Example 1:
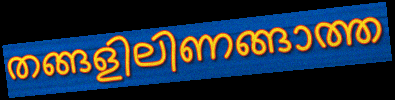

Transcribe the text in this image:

തങ്ങളിലിണങ്ങാത്ത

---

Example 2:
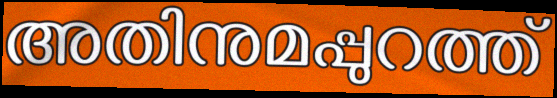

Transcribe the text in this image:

അതിനുമപ്പുറത്ത്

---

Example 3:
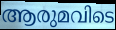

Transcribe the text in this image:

ആരുമവിടെ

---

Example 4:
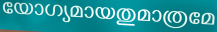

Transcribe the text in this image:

യോഗ്യമായതുമാത്രമേ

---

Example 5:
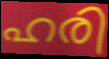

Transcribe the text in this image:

ഹരി